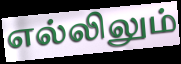
எல்லிலும்